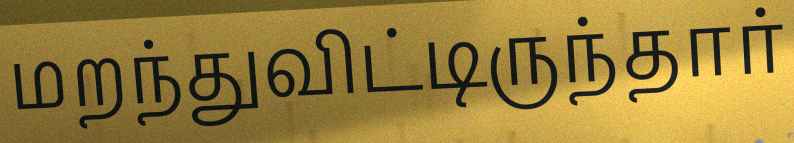
மறந்துவிட்டிருந்தார்